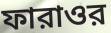
ফারাওর